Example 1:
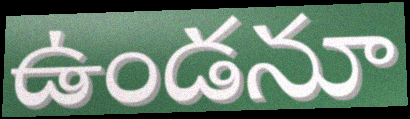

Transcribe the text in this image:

ఉండనూ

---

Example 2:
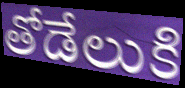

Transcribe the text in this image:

తోడేలుకి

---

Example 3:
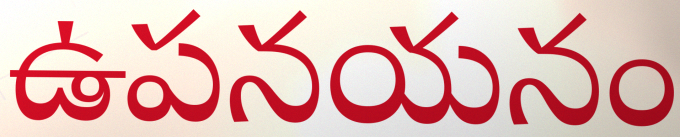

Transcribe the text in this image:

ఉపనయనం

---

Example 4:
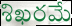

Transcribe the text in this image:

శిఖరమే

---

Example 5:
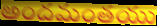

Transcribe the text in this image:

అందమంతయు